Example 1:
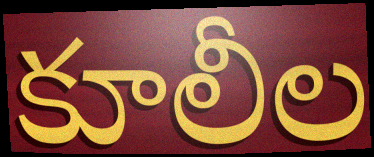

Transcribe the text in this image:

కూలీల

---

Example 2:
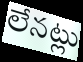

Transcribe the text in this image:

లేనట్లు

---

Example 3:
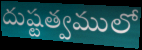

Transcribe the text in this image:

దుష్టత్వములో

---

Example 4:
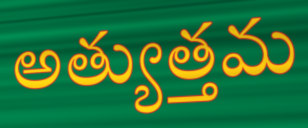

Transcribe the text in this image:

అత్యుత్తమ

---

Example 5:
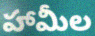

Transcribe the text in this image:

హామీల